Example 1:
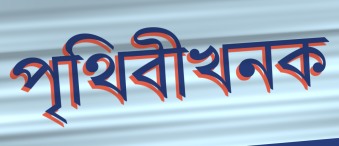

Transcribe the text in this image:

পৃথিবীখনক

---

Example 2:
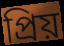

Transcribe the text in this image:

প্ৰিয়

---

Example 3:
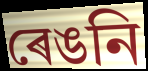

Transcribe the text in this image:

ৰেঙনি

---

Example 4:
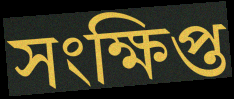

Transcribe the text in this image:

সংক্ষিপ্ত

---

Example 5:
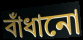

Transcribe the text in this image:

বাঁধানো